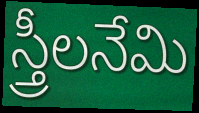
స్త్రీలనేమి